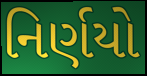
નિર્ણયો